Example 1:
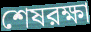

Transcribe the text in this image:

শেষরক্ষা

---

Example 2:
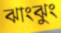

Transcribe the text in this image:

ঝাংঝুং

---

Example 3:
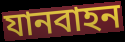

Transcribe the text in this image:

যানবাহন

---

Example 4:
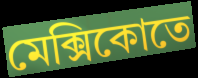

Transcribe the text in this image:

মেক্সিকোতে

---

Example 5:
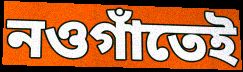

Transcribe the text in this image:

নওগাঁতেই